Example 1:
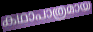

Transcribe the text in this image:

കഥാപാത്രമായ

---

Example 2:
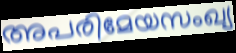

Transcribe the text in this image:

അപരിമേയസംഖ്യ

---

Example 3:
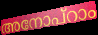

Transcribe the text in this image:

അനോപ്റാം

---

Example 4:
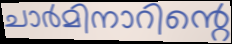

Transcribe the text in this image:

ചാർമിനാറിന്റെ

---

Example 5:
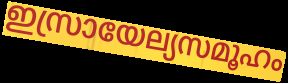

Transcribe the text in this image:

ഇസ്രായേല്യസമൂഹം